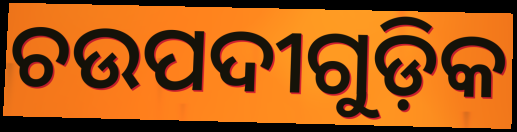
ଚଉପଦୀଗୁଡ଼ିକ